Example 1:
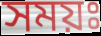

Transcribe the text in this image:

সময়ঃ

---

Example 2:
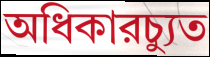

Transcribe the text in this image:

অধিকারচ্যুত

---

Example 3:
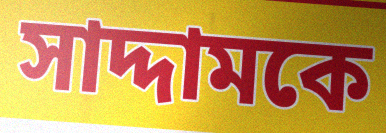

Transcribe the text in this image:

সাদ্দামকে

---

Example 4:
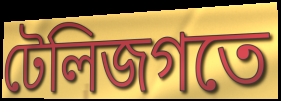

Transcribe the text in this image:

টেলিজগতে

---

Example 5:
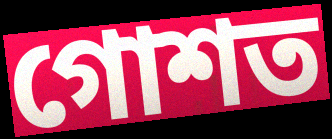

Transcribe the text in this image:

গোশত